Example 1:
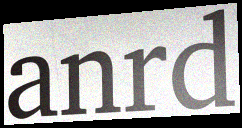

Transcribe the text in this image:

anrd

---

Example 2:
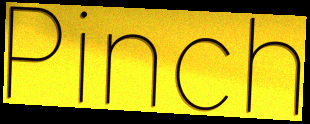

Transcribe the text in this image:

Pinch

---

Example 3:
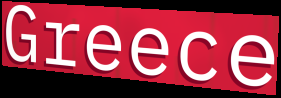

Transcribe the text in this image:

Greece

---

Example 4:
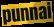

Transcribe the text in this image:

punnai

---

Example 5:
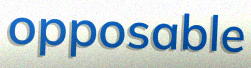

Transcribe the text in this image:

opposable